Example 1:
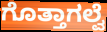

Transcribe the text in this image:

ಗೊತ್ತಾಗಲ್ವೆ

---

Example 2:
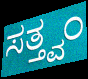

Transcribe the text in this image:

ಸತ್ತ್ವಂ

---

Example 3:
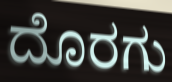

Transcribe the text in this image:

ದೊರಗು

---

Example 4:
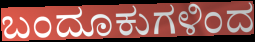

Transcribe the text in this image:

ಬಂದೂಕುಗಳಿಂದ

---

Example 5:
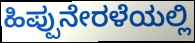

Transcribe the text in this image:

ಹಿಪ್ಪುನೇರಳೆಯಲ್ಲಿ